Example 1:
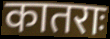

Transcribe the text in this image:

कातराः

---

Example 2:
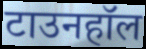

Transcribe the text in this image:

टाउनहॉल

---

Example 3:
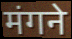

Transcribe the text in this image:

मंगने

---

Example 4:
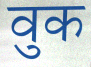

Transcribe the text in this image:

वुक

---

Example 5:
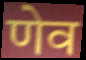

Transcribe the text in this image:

णेव